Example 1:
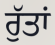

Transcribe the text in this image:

ਰੁੱਤਾਂ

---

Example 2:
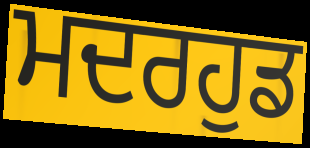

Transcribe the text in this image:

ਮਦਰਹੁਡ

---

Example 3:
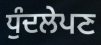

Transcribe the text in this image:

ਧੁੰਦਲੇਪਣ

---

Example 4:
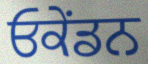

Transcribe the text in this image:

ਓਕੇਂਡਨ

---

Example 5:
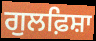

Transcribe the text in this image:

ਗੁਲਫ਼ਿਸ਼ਾ